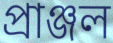
প্ৰাঞ্জল